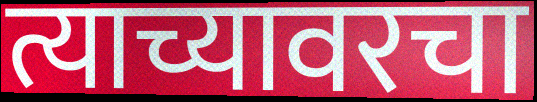
त्याच्यावरचा